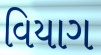
વિયાગ